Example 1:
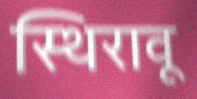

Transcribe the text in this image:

स्थिरावू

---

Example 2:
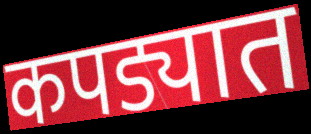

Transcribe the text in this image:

कपड्यात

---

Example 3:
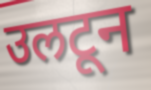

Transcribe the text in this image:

उलटून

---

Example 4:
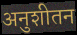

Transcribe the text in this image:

अनुशीतन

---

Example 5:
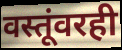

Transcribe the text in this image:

वस्तूंवरही